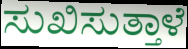
ಸುಖಿಸುತ್ತಾಳೆ